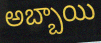
అబ్బాయి